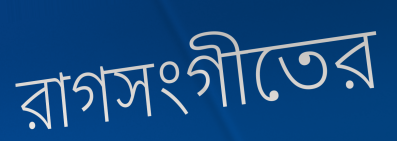
রাগসংগীতের